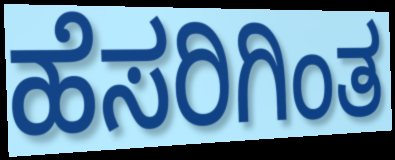
ಹೆಸರಿಗಿಂತ